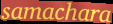
samachara